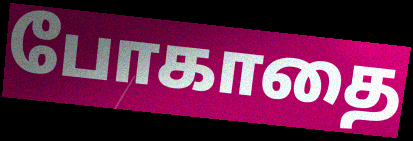
போகாதை